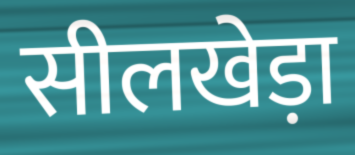
सीलखेड़ा